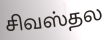
சிவஸ்தல